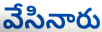
వేసినారు